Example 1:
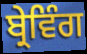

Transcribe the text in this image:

ਬ੍ਰੇਵਿੰਗ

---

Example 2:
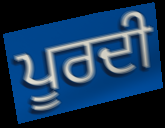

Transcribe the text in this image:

ਪੂਰਦੀ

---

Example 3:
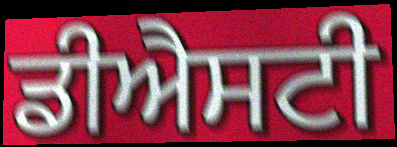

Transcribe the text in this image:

ਡੀਐਸਟੀ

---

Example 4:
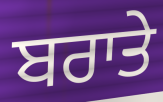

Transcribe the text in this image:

ਬਰਾਤੇ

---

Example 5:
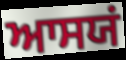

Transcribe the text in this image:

ਆਸਯਂ